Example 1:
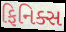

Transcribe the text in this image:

ફિનિક્સ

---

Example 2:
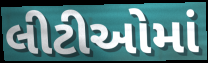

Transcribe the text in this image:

લીટીઓમાં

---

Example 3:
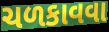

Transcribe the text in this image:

ચળકાવવા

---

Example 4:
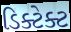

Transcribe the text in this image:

ડિક્ટેક્ટ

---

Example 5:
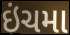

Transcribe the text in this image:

ઇંચમા